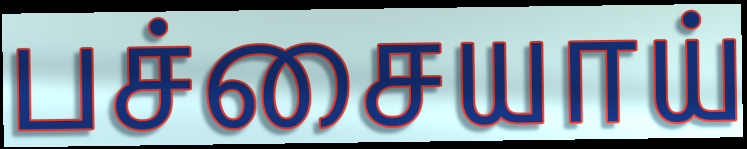
பச்சையாய்